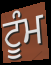
ਟੂੰਮ